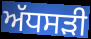
ਅੱਧਸੜੀ